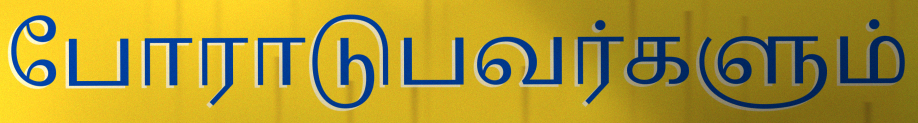
போராடுபவர்களும்